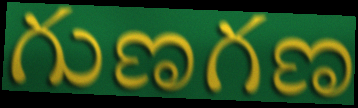
గుణగణ